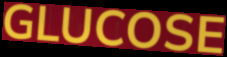
GLUCOSE